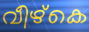
വീഴ്കെ